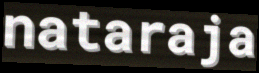
nataraja